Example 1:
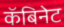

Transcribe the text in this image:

कॅबिनेट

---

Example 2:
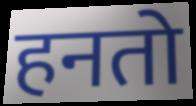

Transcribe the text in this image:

हनतो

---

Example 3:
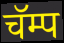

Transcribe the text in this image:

चॅम्प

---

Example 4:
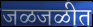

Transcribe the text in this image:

जळजळीत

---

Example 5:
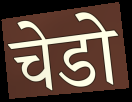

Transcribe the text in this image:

चेडो